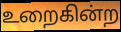
உறைகின்ற